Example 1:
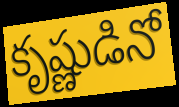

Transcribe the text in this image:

కృష్ణుడినో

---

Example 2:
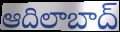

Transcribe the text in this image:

ఆదిలాబాద్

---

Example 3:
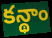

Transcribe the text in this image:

కన్థాం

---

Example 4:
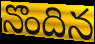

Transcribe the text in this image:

నొందిన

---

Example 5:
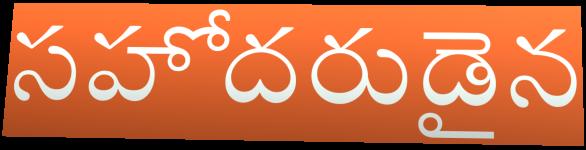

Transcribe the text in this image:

సహోదరుడైన